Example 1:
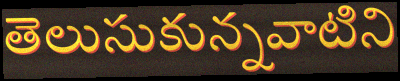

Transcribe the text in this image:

తెలుసుకున్నవాటిని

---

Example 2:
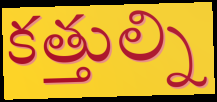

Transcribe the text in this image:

కత్తుల్ని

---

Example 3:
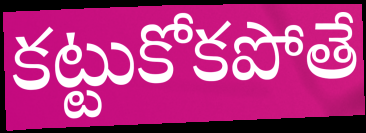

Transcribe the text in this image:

కట్టుకోకపోతే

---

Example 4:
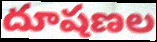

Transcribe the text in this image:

దూషణల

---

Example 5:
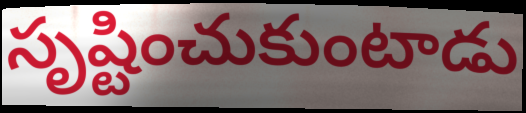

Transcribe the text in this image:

సృష్టించుకుంటాడు